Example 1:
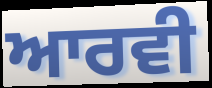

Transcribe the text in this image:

ਆਰਵੀ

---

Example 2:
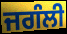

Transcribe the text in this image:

ਜਗੰਲੀ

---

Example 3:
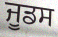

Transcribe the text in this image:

ਜੂਡਸ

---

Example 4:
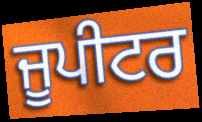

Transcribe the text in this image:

ਜੂਪੀਟਰ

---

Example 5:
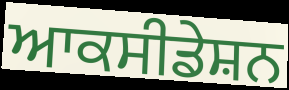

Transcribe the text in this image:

ਆਕਸੀਡੇਸ਼ਨ